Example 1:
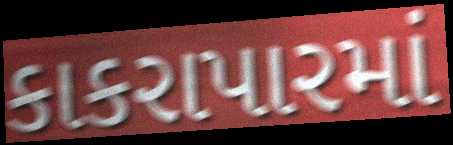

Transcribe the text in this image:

કાકરાપારમાં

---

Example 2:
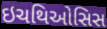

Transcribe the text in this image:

ઇચથિઓસિસ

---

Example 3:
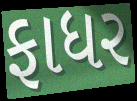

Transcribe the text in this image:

ફાધર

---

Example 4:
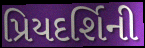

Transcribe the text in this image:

પ્રિયદર્શિની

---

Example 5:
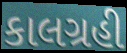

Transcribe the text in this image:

કાલગ્રહી